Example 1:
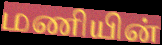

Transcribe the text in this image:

மணியின்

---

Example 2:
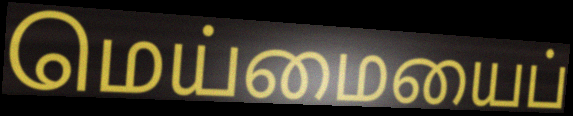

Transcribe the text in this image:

மெய்மையைப்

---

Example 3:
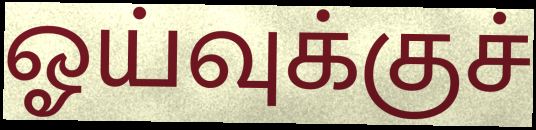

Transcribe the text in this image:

ஓய்வுக்குச்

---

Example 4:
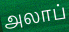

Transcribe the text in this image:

அலாப்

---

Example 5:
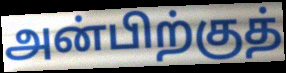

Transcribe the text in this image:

அன்பிற்குத்